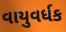
વાયુવર્ધક